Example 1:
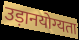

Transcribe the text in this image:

उड़ानयोग्यता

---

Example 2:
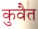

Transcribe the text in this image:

कुवैत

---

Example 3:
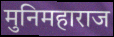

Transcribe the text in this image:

मुनिमहाराज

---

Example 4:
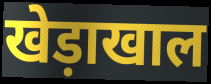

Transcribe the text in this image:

खेड़ाखाल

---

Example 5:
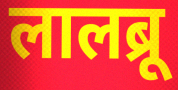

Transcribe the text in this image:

लालब्रू